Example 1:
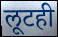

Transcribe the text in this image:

लूटही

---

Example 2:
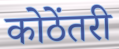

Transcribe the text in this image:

कोठेंतरी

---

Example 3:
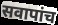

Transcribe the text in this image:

सवापांच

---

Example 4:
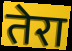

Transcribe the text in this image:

तेरा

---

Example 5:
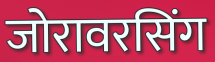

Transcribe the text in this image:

जोरावरसिंग